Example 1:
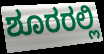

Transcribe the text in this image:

ಶೂರರಲ್ಲಿ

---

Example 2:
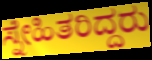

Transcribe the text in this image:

ಸ್ನೇಹಿತರಿದ್ದರು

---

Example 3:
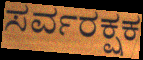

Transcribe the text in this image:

ಸರ್ವರಕ್ಷಕ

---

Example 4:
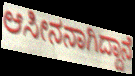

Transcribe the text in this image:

ಆಸೀನನಾಗಿದ್ದಾನೆ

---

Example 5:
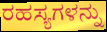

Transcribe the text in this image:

ರಹಸ್ಯಗಳನ್ನು